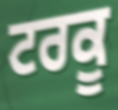
ਟਰਕੂ